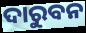
ଦାରୁବନ